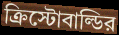
ক্রিস্টোবাল্ডির